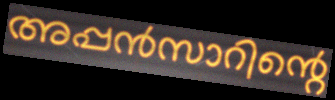
അപ്പൻസാറിന്റെ